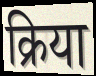
क्रिया